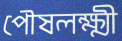
পৌষলক্ষ্মী